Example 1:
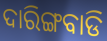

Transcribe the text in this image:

ଦାରିଙ୍ଗବାଡି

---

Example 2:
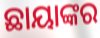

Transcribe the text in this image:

ଛାୟାଙ୍କର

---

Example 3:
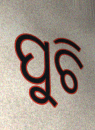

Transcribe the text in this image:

ପୁଚି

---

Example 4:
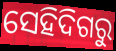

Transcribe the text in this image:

ସେହିଦିଗରୁ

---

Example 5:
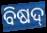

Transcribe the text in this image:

ବିଷଦ୍